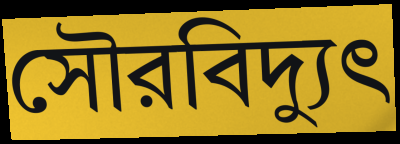
সৌরবিদ্যুৎ